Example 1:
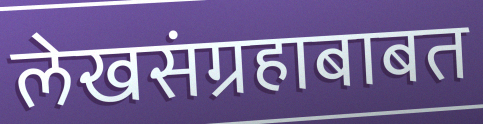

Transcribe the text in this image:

लेखसंग्रहाबाबत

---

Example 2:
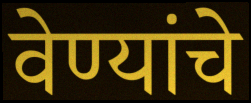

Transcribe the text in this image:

वेण्यांचे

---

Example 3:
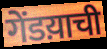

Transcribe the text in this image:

गेंडय़ाची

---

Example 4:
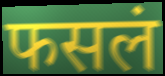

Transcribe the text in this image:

फसलं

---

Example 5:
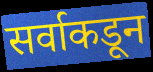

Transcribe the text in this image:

सर्वाकडून